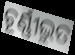
ଚୂର୍ଣ୍ଣୀଭୁତ